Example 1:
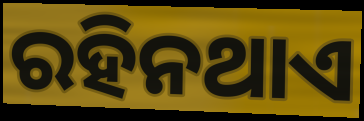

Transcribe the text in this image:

ରହିନଥାଏ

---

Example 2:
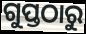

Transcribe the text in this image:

ଗୁପ୍ତଠାରୁ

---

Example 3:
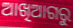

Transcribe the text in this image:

ଆଖିଆଗରୁ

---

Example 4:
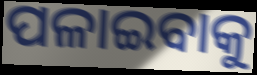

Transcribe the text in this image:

ପଳାଇବାକୁ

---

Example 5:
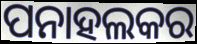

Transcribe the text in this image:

ପନାହଲକର